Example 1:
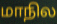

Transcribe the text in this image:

மாநில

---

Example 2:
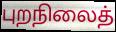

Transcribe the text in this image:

புறநிலைத்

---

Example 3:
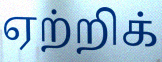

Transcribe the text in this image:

ஏற்றிக்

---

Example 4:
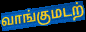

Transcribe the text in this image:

வாங்குமடற்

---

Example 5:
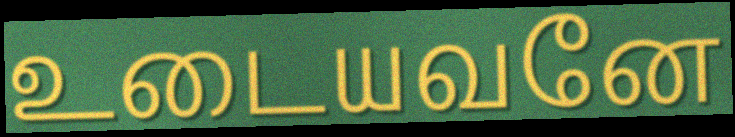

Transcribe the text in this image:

உடையவனே